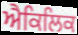
ਐਕਿਲਿਕ